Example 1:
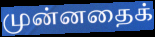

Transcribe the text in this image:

முன்னதைக்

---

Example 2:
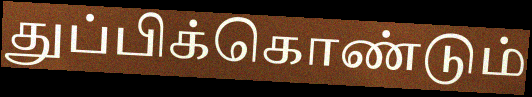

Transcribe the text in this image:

துப்பிக்கொண்டும்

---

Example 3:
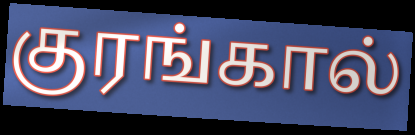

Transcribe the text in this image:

குரங்கால்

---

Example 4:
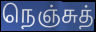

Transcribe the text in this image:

நெஞ்சுத்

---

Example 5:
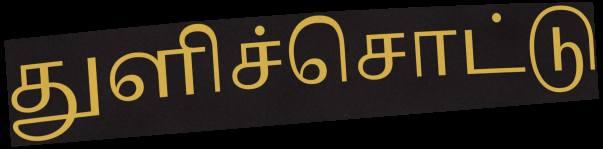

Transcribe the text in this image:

துளிச்சொட்டு